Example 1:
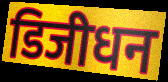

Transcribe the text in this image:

डिजीधन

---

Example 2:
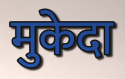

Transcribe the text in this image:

मुकेदा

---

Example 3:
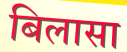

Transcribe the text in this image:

बिलासा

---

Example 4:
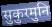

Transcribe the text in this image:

सुकुरमुनि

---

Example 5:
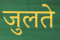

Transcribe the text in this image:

जुलते